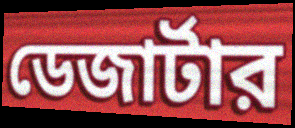
ডেজার্টার